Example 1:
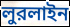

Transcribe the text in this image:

লুরলাইন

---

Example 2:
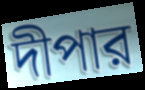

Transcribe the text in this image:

দীপার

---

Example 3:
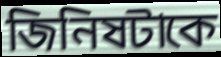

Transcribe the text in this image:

জিনিষটাকে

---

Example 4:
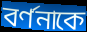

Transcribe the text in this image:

বর্ণনাকে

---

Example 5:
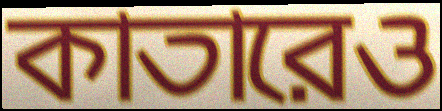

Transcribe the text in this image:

কাতারেও